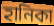
হানিকা